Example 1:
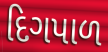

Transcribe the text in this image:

દિગપાળ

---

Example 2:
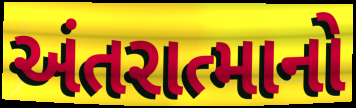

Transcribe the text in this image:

અંતરાત્માનો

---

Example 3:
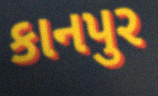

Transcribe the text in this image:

કાનપુર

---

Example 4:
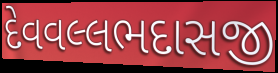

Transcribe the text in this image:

દેવવલ્લભદાસજી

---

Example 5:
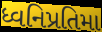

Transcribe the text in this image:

ધ્વનિપ્રતિમા